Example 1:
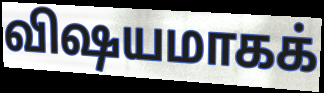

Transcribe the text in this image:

விஷயமாகக்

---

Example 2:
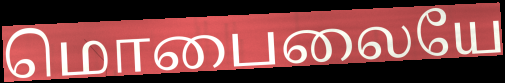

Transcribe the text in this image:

மொபைலையே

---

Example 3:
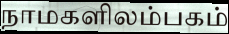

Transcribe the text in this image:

நாமகளிலம்பகம்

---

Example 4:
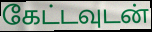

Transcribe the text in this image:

கேட்டவுடன்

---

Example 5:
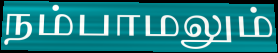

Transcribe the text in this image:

நம்பாமலும்